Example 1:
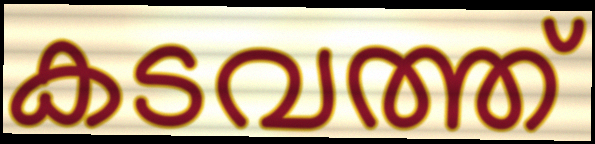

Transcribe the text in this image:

കടവത്ത്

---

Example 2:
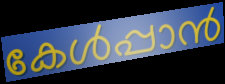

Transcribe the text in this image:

കേൾപ്പാൻ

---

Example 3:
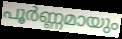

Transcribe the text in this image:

പൂർണ്ണമായും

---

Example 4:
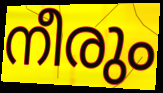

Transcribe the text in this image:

നീരും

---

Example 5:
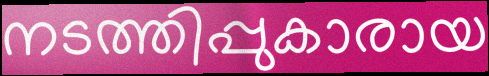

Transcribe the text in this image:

നടത്തിപ്പുകാരായ